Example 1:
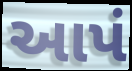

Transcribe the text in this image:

આપં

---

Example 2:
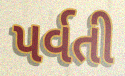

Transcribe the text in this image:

પર્વતી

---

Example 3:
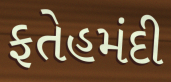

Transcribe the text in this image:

ફતેહમંદી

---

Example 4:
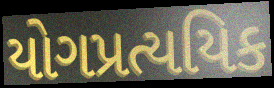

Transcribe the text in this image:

યોગપ્રત્યયિક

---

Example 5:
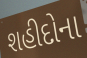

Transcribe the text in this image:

શહીદોના